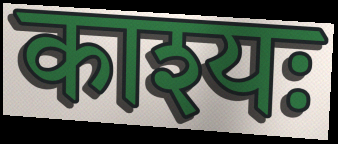
काश्यः